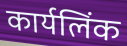
कार्यलिंक